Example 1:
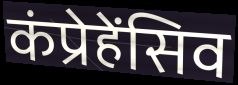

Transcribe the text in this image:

कंप्रेहेंसिव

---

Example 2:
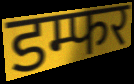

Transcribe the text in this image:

डम्फर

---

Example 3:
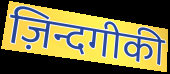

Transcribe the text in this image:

ज़िन्दगीकी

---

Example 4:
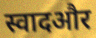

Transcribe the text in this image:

स्वादऔर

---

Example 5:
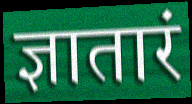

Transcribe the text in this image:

ज्ञातारं